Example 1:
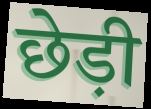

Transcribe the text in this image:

छेड़ी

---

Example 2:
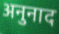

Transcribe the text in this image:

अनुनाद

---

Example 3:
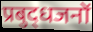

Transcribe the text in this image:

प्रबुद्धजनों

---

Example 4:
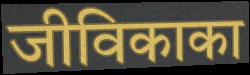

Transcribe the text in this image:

जीविकाका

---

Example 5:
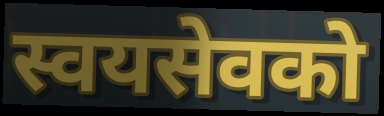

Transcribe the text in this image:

स्वयसेवको